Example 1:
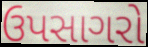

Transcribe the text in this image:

ઉપસાગરો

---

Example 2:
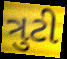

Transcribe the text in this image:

ત્રુટી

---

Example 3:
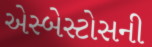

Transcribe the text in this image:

એસ્બેસ્ટોસની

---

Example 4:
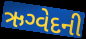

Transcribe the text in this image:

ઋગ્વેદની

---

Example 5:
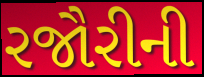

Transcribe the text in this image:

રજૌરીની